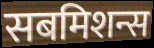
सबमिशन्स